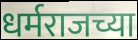
धर्मराजच्या